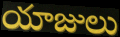
యాజులు